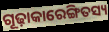
ଗୂଢ଼ାକାରେଙ୍ଗିତସ୍ୟ